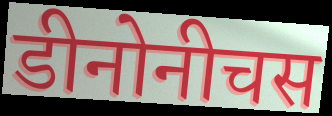
डीनोनीचस